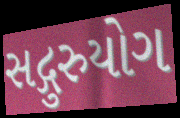
સદ્ગુરુયોગ